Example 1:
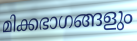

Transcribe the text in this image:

മിക്കഭാഗങ്ങളും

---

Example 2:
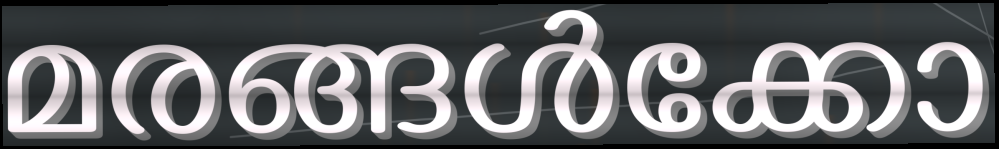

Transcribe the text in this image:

മരങ്ങൾക്കോ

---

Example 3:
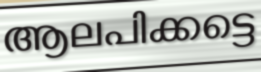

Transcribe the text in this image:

ആലപിക്കട്ടെ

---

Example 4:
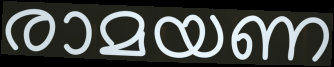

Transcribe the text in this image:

രാമയണ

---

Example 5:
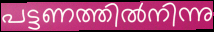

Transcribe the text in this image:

പട്ടണത്തിൽനിന്നു